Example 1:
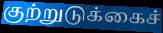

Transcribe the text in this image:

குற்றுடுக்கைச்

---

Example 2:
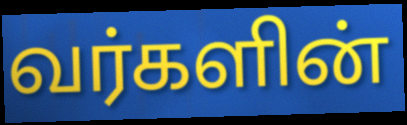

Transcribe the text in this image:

வர்களின்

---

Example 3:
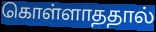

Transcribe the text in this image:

கொள்ளாததால்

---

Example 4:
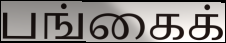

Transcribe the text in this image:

பங்கைக்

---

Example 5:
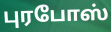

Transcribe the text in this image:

புரபோஸ்